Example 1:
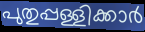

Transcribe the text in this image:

പുതുപ്പള്ളിക്കാർ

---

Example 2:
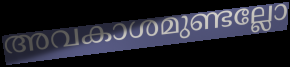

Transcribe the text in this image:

അവകാശമുണ്ടല്ലോ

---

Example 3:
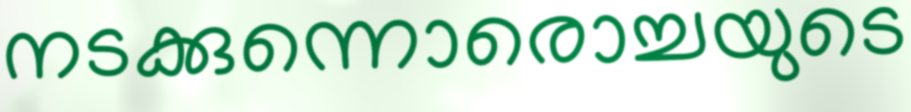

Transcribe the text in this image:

നടക്കുന്നൊരൊച്ചയുടെ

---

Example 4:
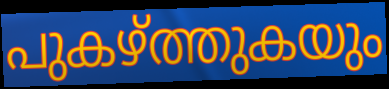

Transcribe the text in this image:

പുകഴ്ത്തുകയും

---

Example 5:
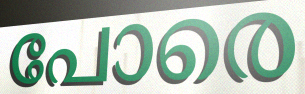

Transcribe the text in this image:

പോരെ